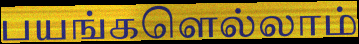
பயங்களெல்லாம்